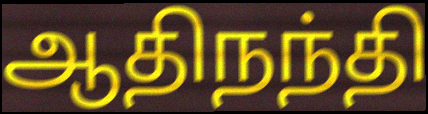
ஆதிநந்தி